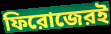
ফিরোজেরই